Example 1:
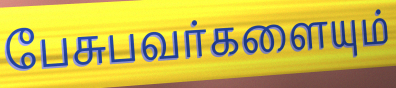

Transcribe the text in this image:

பேசுபவர்களையும்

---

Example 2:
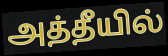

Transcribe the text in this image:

அத்தீயில்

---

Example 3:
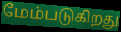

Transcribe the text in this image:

மேம்படுகிறது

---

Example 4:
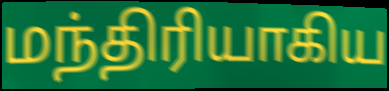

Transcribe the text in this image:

மந்திரியாகிய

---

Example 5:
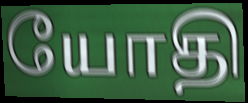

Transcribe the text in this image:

யோதி